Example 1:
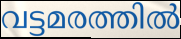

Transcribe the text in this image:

വട്ടമരത്തിൽ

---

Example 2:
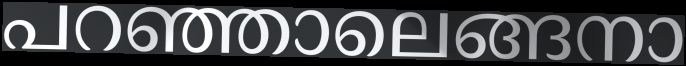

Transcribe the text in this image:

പറഞ്ഞാലെങ്ങനാ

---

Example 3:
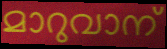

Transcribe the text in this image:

മാറുവാന്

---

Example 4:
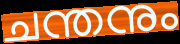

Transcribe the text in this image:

ചന്തനും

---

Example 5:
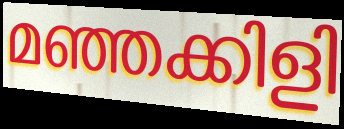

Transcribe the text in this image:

മഞ്ഞക്കിളി